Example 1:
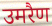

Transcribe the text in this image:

उमरैण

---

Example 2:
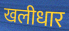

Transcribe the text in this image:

खलीधार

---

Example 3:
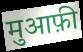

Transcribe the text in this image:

मुआफ़ी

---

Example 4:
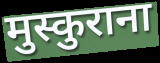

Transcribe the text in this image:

मुस्कुराना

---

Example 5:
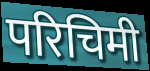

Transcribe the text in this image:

परिचिमी